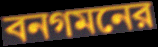
বনগমনের